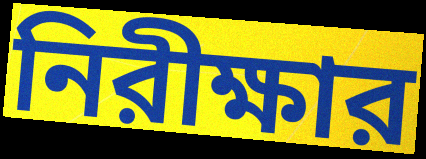
নিরীক্ষার